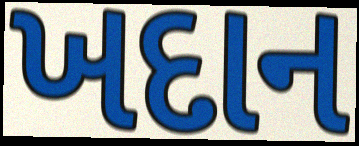
ખદાન